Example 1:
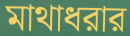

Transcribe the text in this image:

মাথাধরার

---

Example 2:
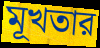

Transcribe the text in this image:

মূখতার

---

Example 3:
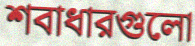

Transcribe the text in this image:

শবাধারগুলো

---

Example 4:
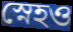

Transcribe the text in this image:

স্নেহও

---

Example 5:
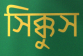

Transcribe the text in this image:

সিক্কুস